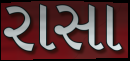
રાસા